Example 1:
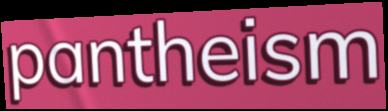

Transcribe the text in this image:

pantheism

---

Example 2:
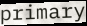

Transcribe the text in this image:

primary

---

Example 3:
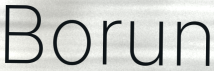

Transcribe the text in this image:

Borun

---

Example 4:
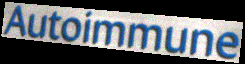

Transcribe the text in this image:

Autoimmune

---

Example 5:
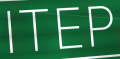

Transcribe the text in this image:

ITEP